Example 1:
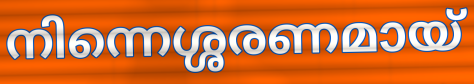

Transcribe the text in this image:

നിന്നെശ്ശരണമായ്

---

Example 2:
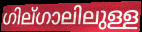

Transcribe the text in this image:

ഗില്ഗാലിലുള്ള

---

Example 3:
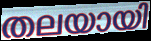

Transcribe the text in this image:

തലയായി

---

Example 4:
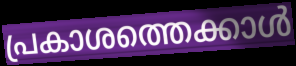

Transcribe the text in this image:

പ്രകാശത്തെക്കാൾ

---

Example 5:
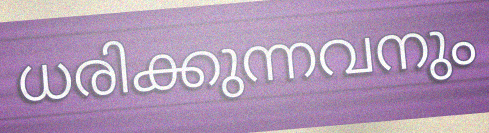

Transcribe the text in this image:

ധരിക്കുന്നവനും